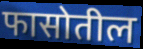
फासोतील